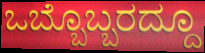
ಒಬ್ಬೊಬ್ಬರದ್ದೂ